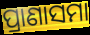
ପ୍ରାଣାସମା